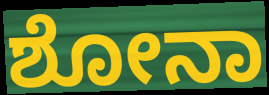
ಶೋನಾ